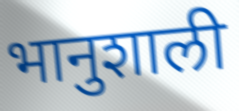
भानुशाली